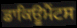
ਡਾਕਿਊਮੈਂਟਸ